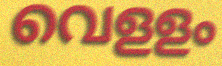
വെളളം